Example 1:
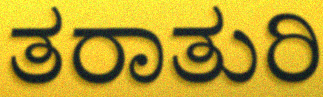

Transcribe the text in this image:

ತರಾತುರಿ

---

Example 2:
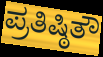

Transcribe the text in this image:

ಪ್ರತಿಷ್ಠಿತೌ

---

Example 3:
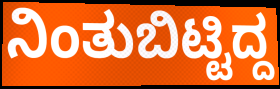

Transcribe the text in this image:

ನಿಂತುಬಿಟ್ಟಿದ್ದ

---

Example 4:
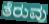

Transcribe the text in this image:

ತೆರುವು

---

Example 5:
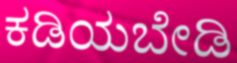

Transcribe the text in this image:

ಕಡಿಯಬೇಡಿ